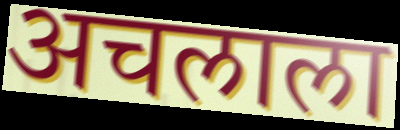
अचलाला